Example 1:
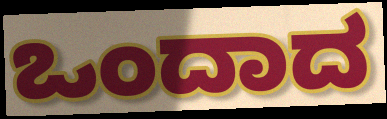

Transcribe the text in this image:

ಒಂದಾದ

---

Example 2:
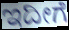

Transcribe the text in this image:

ಇದೀಗೆ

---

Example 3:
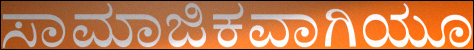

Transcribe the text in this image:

ಸಾಮಾಜಿಕವಾಗಿಯೂ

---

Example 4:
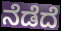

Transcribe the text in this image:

ನೆಡೆದೆ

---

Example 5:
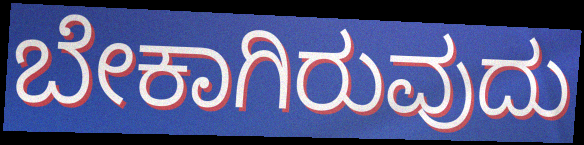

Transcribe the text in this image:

ಬೇಕಾಗಿರುವುದು